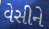
વેસીને